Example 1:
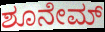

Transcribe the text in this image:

ಶೂನೇಮ್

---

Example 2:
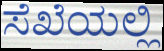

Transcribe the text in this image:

ಸೆಖೆಯಲ್ಲಿ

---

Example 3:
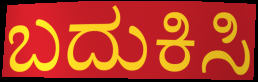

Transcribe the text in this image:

ಬದುಕಿಸಿ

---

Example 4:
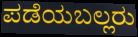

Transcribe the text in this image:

ಪಡೆಯಬಲ್ಲರು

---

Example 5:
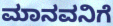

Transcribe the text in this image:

ಮಾನವನಿಗೆ